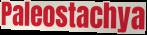
Paleostachya